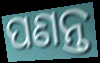
ପଣନ୍ତ